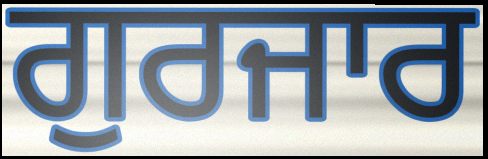
ਗੁਰਜਾਰ